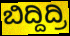
ಬಿದ್ದಿದ್ರಿ